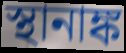
স্থানাঙ্ক